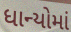
ધાન્યોમાં